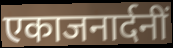
एकाजनार्दनीं